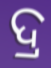
ଦ୍ର